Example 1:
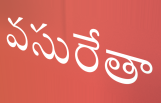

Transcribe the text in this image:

వసురేతా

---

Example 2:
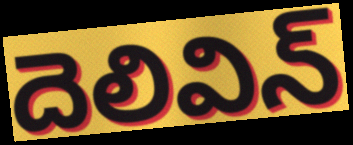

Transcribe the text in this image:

దెలివిన్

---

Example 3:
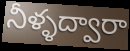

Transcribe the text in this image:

నీళ్ళద్వారా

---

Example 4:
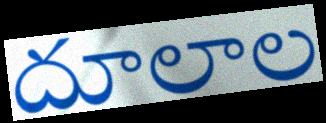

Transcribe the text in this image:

దూలాల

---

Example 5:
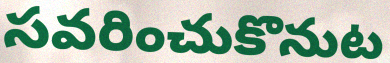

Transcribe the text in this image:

సవరించుకొనుట